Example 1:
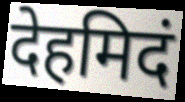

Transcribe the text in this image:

देहमिदं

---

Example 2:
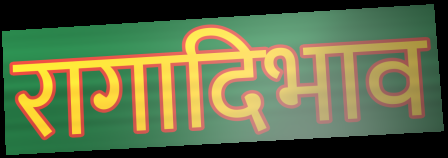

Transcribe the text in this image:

रागादिभाव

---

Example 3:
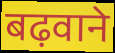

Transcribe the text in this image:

बढ़वाने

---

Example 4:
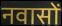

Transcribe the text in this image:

नवासों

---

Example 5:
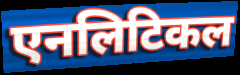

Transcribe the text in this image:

एनलिटिकल